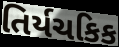
તિર્યચકિક